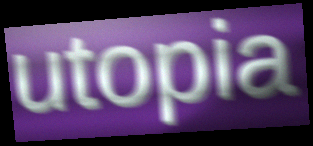
utopia